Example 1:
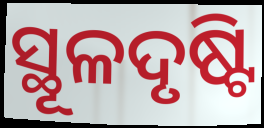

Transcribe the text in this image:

ସ୍ଥୂଳଦୃଷ୍ଟି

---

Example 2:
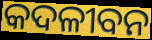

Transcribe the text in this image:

କଦଳୀବନ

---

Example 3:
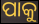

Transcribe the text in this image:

ପାକୁ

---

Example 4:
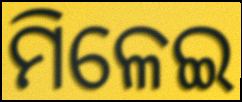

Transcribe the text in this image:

ମିଳେଇ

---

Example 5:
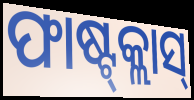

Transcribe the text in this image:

ଫାଷ୍ଟ୍‍କ୍ଲାସ୍